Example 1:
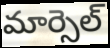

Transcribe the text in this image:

మార్సెల్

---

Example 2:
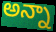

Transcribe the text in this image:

అన్నా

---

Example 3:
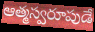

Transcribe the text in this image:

ఆత్మస్వరూపుడే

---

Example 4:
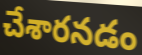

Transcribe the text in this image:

చేశారనడం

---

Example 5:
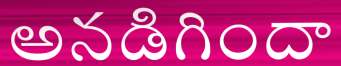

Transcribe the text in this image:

అనడిగిందా